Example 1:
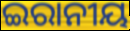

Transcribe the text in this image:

ଇରାନୀୟ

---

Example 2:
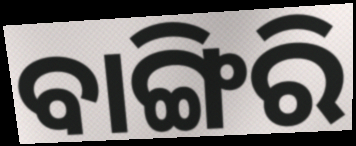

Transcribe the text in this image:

ବାଙ୍ଗିରି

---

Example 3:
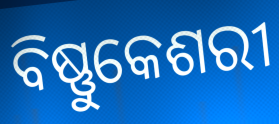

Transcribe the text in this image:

ବିଷ୍ଣୁକେଶରୀ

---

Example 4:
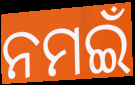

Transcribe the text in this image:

ନମଇଁ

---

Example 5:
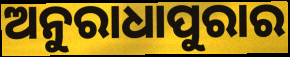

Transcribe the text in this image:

ଅନୁରାଧାପୁରାର